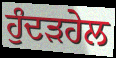
ਹੁੰਦੜਹੇਲ